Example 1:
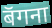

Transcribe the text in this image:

बॅगना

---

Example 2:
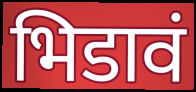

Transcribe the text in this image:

भिडावं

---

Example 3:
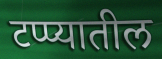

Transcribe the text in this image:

टप्प्यातील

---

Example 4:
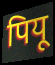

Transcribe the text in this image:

पियू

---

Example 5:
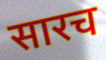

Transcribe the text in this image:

सारच